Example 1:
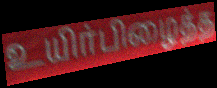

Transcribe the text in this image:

உயிர்பிழைத்த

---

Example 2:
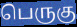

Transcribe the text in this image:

பெருகு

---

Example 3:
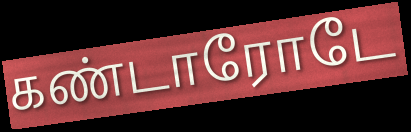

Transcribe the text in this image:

கண்டாரோடே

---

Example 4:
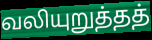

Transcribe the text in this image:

வலியுறுத்தத்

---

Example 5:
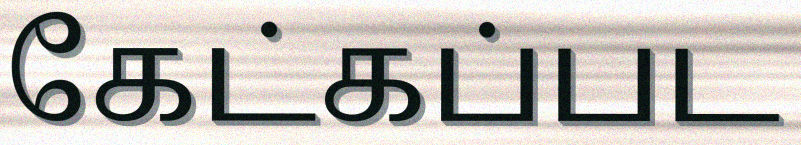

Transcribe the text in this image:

கேட்கப்பட